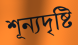
শূন্যদৃষ্টি